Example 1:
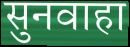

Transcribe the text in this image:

सुनवाहा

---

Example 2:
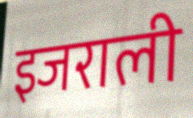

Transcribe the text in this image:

इजराली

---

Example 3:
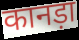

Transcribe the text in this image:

कानड़ा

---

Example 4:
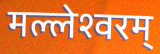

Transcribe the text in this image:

मल्लेश्वरम्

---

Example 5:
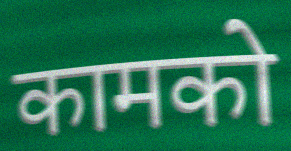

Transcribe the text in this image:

कामको